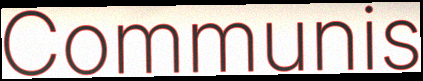
Communis